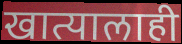
खात्यालाही